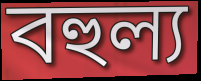
বহুল্য